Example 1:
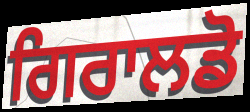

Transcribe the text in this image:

ਗਿਰਾਲਡੋ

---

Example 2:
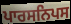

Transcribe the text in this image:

ਪਾਰਸਨਿਪਸ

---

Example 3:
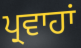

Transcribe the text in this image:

ਪ੍ਰਵਾਹਾਂ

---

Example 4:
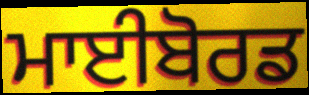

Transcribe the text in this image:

ਮਾਈਬੋਰਡ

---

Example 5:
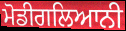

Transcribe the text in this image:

ਮੋਡੀਗਲਿਆਨੀ